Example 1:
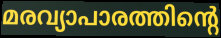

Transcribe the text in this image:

മരവ്യാപാരത്തിന്റെ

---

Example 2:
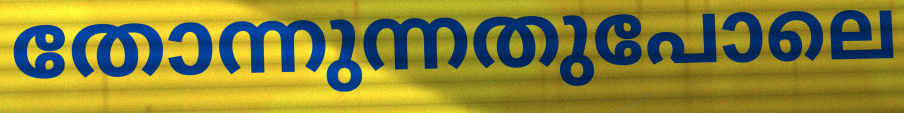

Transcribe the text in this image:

തോന്നുന്നതുപോലെ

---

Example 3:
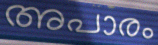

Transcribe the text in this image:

അപാരം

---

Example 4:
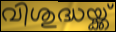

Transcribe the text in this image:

വിശുദ്ധയ്ക്ക്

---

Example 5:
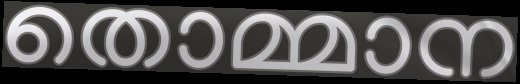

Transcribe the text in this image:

തൊമ്മാന